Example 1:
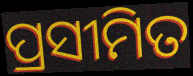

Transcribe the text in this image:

ପ୍ରସୀମିତ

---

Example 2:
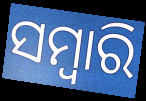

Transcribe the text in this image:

ସମ୍ବାରି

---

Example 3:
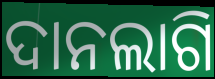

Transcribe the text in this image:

ଦାନଲାଗି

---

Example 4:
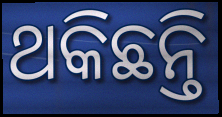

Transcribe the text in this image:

ଥକିଛନ୍ତି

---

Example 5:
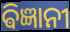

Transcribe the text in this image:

ଵିଜ୍ଞାନୀ